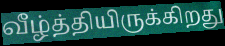
வீழ்த்தியிருக்கிறது